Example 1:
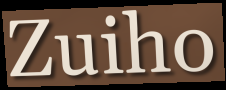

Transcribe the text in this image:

Zuiho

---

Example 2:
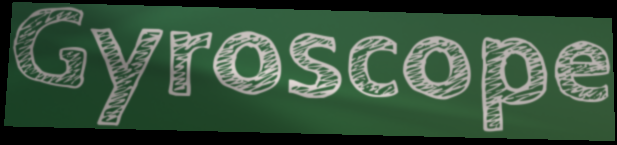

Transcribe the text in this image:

Gyroscope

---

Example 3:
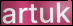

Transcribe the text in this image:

artuk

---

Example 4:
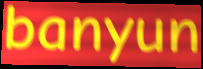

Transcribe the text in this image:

banyun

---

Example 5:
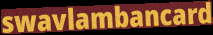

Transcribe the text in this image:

swavlambancard